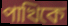
পাখিকে